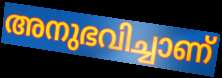
അനുഭവിച്ചാണ്